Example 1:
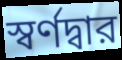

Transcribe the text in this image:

স্বর্ণদ্বার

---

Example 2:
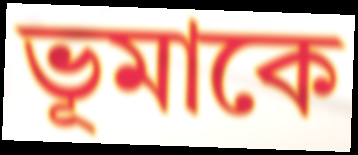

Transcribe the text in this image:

ভূমাকে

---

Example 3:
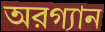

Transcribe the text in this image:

অরগ্যান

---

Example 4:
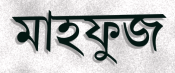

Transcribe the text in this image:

মাহফুজ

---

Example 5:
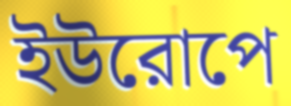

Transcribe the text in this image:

ইউরোপে